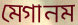
মেগানম